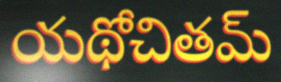
యథోచితమ్